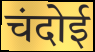
चंदोई